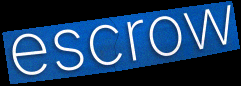
escrow